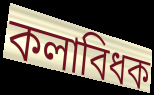
কলাবিধক